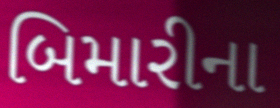
બિમારીના